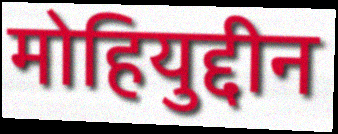
मोहियुद्दीन